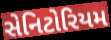
સેનિટોરિયમ